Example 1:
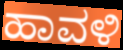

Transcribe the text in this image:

ಹಾವಳಿ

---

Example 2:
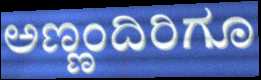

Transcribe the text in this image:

ಅಣ್ಣಂದಿರಿಗೂ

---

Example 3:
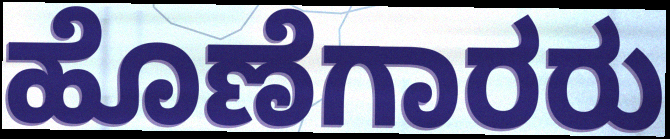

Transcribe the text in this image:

ಹೊಣೆಗಾರರು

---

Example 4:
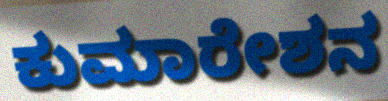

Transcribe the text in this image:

ಕುಮಾರೇಶನ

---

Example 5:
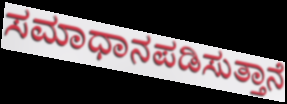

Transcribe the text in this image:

ಸಮಾಧಾನಪಡಿಸುತ್ತಾನೆ